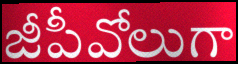
జీపీవోలుగా